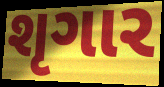
શૃગાર